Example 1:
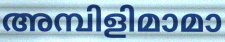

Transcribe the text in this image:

അമ്പിളിമാമാ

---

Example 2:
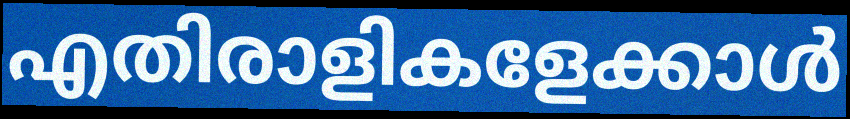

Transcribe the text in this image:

എതിരാളികളേക്കാൾ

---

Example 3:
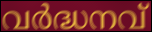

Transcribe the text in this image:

വർദ്ധനവ്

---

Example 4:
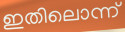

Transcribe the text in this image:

ഇതിലൊന്ന്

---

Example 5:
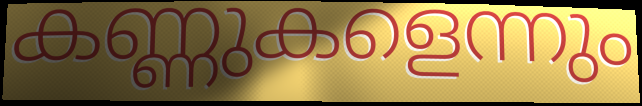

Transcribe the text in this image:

കണ്ണുകളെന്നും